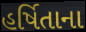
હર્ષિતાના